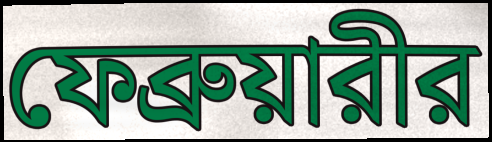
ফেব্রুয়ারীর